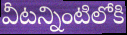
వీటన్నింటిలోకి